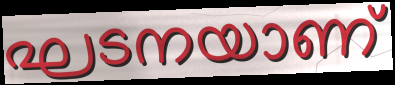
ഘടനയാണ്